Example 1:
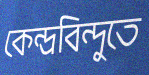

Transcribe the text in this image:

কেন্দ্রবিন্দুতে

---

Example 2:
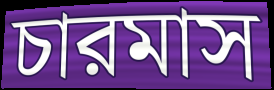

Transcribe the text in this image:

চারমাস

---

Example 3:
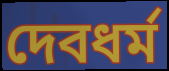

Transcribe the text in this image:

দেবধর্ম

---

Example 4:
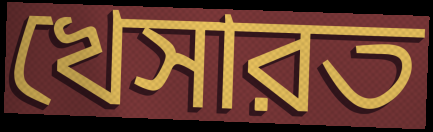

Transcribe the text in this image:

খেসারত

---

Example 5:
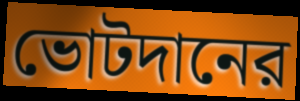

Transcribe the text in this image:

ভোটদানের